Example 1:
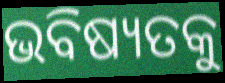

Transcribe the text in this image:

ଭବିଷ୍ୟତକୁ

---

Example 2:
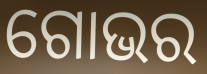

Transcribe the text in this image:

ଗୋଭର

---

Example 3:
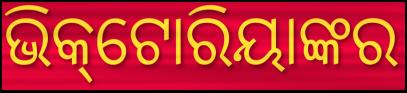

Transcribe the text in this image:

ଭିକ୍‌ଟୋରିୟାଙ୍କର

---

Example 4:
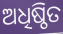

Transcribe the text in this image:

ଅଧିଷ୍ଠିତ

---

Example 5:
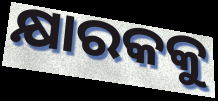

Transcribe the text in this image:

କ୍ଷାରକକୁ